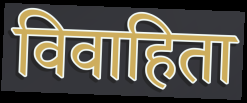
विवाहिता